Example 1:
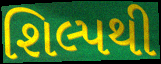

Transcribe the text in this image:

શિલ્પથી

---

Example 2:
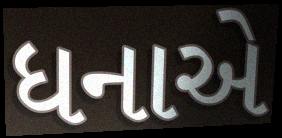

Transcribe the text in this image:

ધનાએ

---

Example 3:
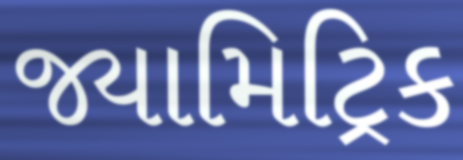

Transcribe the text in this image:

જ્યામિટ્રિક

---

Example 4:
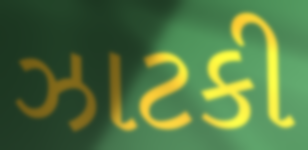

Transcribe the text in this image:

ઝાટકી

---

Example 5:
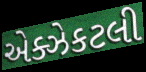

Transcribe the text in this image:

એક્ઝેકટલી